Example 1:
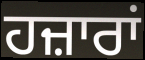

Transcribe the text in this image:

ਹਜ਼ਾਰਾਂ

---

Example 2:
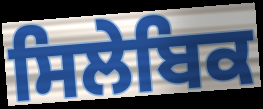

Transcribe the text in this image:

ਸਿਲੇਬਿਕ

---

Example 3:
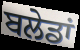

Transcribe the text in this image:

ਬਲੇਡਾਂ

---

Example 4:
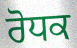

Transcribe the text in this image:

ਰੋਧਕ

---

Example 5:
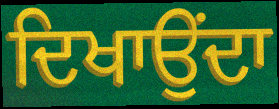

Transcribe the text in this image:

ਦਿਖਾਉਂਦਾ